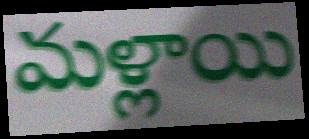
మళ్లాయి